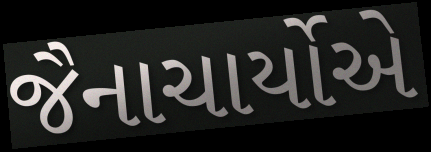
જૈનાચાર્યોએ